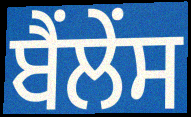
ਬੈਂਲੇਂਸ